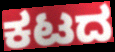
ಕಟದ